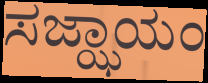
ಸಜ್ಝಾಯಂ